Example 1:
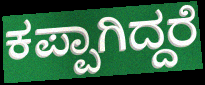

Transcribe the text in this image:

ಕಪ್ಪಾಗಿದ್ದರೆ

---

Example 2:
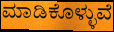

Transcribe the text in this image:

ಮಾಡಿಕೊಳ್ಳುವೆ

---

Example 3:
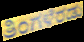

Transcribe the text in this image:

ತಿಂಗಳೆರಡು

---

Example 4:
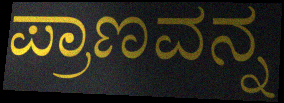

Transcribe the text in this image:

ಪ್ರಾಣವನ್ನ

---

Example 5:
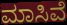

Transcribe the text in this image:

ಮಾಸಿವೆ